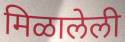
मिळालेली